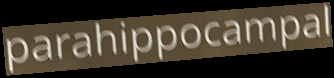
parahippocampal